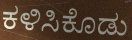
ಕಳಿಸಿಕೊಡು